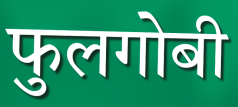
फुलगोबी